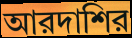
আরদাশির